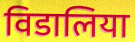
विडालिया